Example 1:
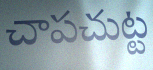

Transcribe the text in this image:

చాపచుట్ట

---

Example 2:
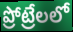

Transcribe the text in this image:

ప్రోట్రేలలో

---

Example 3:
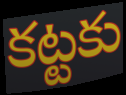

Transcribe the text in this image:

కట్టకు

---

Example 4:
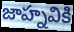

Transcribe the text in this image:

జాహ్నవికి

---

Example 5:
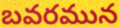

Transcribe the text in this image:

బవరమున